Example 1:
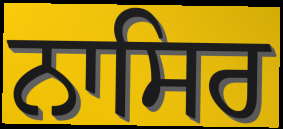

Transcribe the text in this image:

ਨਾਸਿਰ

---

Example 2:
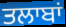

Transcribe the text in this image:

ਤਲਾਬਾਂ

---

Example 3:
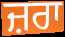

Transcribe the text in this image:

ਜ਼ਰਾ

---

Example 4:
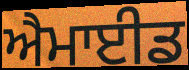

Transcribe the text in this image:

ਐਮਾਈਡ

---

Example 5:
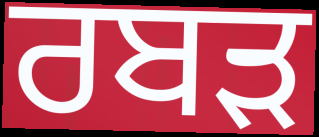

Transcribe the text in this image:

ਰਬੜ